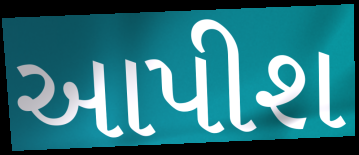
આપીશ